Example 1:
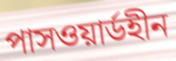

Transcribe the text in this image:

পাসওয়ার্ডহীন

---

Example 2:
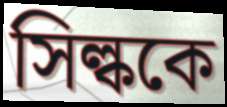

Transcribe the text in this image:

সিল্ককে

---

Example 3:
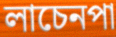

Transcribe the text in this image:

লাচেনপা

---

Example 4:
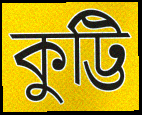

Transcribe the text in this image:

কুট্টি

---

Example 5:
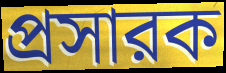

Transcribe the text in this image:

প্রসারক